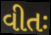
વીતઃ